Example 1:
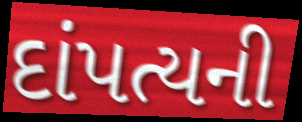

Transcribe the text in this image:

દાંપત્યની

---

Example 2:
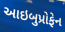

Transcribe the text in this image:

આઇબુપ્રોફેન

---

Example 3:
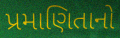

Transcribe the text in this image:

પ્રમાણિતાનો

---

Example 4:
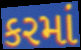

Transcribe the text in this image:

કરમાં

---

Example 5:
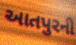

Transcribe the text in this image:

આતપુરની